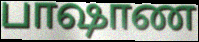
பாஷாண